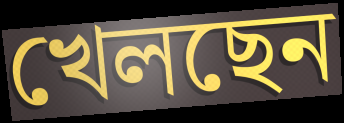
খেলছেন